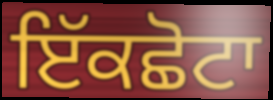
ਇੱਕਛੋਟਾ